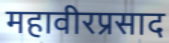
महावीरप्रसाद